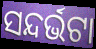
ସନ୍ଦର୍ଭଟା